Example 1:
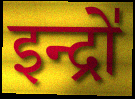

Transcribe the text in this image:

इन्द्रो॑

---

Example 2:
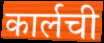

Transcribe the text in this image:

कार्लची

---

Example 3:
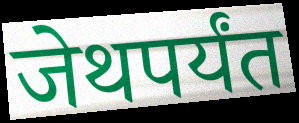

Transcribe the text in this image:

जेथपर्यंत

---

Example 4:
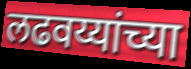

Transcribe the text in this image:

लढवय्यांच्या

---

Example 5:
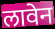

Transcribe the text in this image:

लावेन